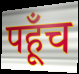
पहूँच